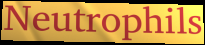
Neutrophils